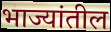
भाज्यांतील